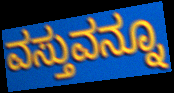
ವಸ್ತುವನ್ನೂ